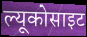
ल्यूकोसाइट